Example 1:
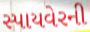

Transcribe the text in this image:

સ્પાયવેરની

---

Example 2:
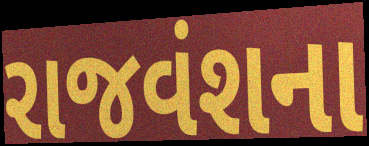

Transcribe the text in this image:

રાજવંશના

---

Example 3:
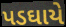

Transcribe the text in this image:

પડઘાયે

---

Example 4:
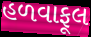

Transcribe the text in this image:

હળવાફૂલ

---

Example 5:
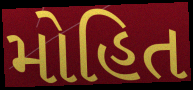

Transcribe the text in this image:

મોહિત